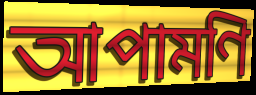
আপামণি